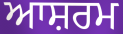
ਆਸ਼ਰਮ